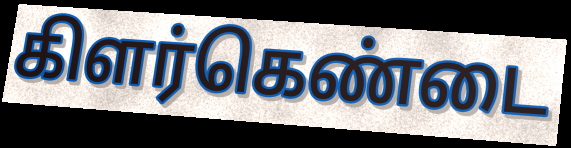
கிளர்கெண்டை